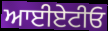
ਆਈਏਟੀਓ